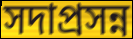
সদাপ্রসন্ন